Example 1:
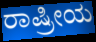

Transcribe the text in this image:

ರಾಷ್ರೀಯ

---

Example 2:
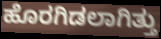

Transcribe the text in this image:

ಹೊರಗಿಡಲಾಗಿತ್ತು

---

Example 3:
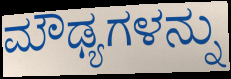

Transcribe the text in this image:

ಮೌಢ್ಯಗಳನ್ನು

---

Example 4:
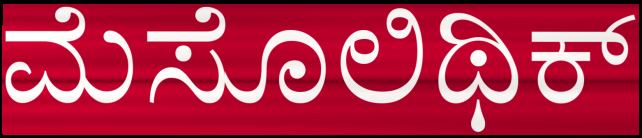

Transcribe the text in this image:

ಮೆಸೊಲಿಥಿಕ್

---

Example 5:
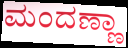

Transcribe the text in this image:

ಮಂದಣ್ಣಾ